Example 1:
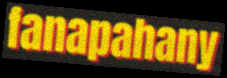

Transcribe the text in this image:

fanapahany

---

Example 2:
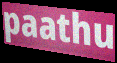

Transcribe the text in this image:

paathu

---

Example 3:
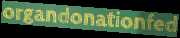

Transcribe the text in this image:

organdonationfed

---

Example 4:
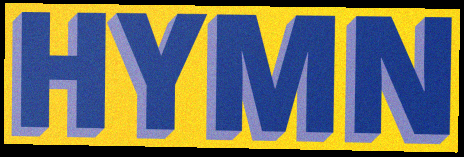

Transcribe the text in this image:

HYMN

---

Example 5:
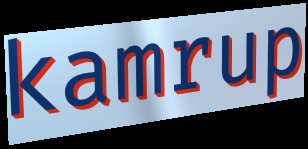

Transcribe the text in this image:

kamrup